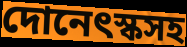
দোনেৎস্কসহ